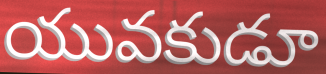
యువకుడూ